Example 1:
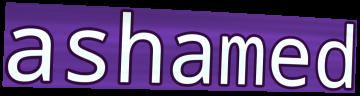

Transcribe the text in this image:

ashamed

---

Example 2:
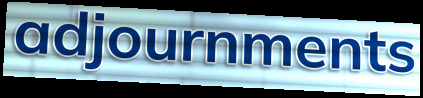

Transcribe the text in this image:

adjournments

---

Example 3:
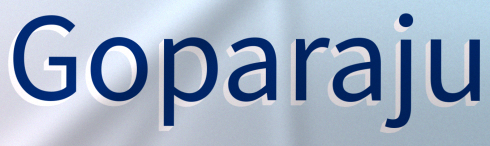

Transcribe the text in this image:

Goparaju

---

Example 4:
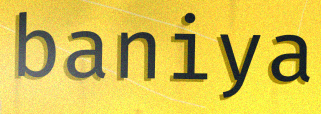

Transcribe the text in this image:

baniya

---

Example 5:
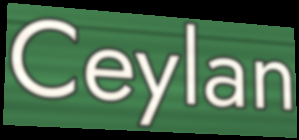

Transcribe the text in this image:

Ceylan